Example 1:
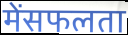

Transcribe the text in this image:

मेंसफलता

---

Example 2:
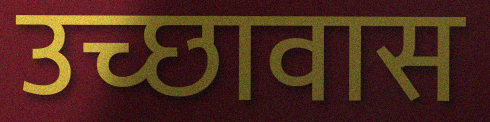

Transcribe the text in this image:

उच्छावास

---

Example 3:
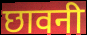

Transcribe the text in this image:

छावनी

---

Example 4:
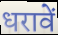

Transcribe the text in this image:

धरावें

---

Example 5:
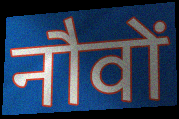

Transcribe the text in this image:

नौवों